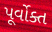
પૂર્વોક્ત